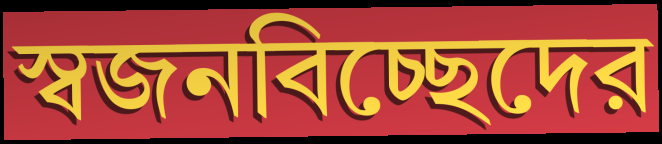
স্বজনবিচ্ছেদের